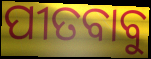
ପୀତବାବୁ